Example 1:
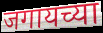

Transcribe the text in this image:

जगायच्या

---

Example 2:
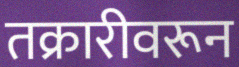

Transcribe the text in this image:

तक्रारीवरून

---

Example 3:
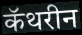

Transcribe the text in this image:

कॅथरीन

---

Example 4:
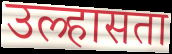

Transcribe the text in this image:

उल्हासता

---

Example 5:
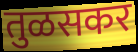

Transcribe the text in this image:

तुळसकर